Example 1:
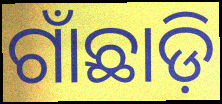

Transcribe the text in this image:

ଗାଁଛାଡ଼ି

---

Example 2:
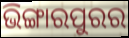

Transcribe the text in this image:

ଭିଙ୍ଗାରପୁରର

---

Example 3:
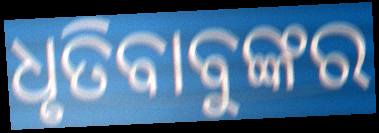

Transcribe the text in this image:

ଧୃତିବାବୁଙ୍କର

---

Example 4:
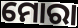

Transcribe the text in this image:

ମୋରା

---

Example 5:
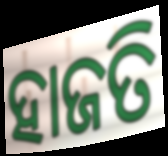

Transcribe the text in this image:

ହାଜତି